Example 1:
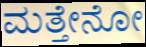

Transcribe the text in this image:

ಮತ್ತೇನೋ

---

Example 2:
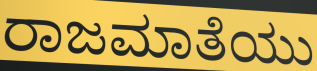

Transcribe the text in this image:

ರಾಜಮಾತೆಯು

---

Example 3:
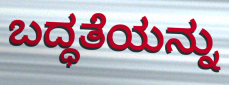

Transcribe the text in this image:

ಬದ್ಧತೆಯನ್ನು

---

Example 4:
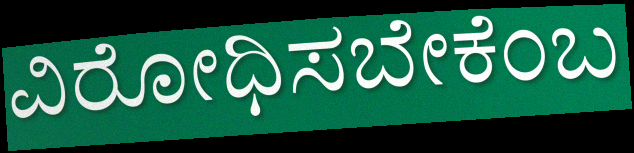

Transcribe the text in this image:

ವಿರೋಧಿಸಬೇಕೆಂಬ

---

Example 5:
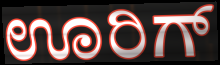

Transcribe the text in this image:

ಊರಿಗ್